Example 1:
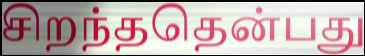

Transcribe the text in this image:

சிறந்ததென்பது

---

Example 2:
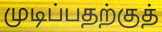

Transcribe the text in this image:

முடிப்பதற்குத்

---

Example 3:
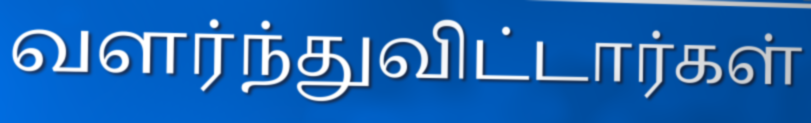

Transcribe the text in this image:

வளர்ந்துவிட்டார்கள்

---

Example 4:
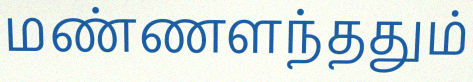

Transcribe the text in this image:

மண்ணளந்ததும்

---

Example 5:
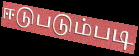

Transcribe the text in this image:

ஈடுபடும்படி